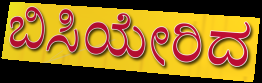
ಬಿಸಿಯೇರಿದ